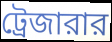
ট্রেজারার